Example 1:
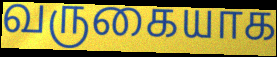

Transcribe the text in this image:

வருகையாக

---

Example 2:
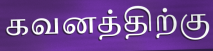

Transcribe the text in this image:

கவனத்திற்கு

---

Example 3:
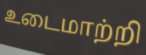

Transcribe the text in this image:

உடைமாற்றி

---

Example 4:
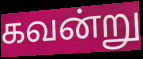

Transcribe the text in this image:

கவன்று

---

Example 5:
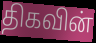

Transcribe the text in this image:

திகவின்